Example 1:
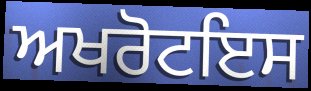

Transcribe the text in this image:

ਅਖਰੋਟਇਸ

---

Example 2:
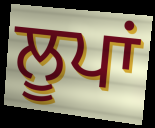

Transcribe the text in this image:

ਲੂਪਾਂ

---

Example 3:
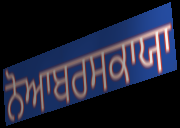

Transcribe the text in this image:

ਨੋਆਬਰਸਕਾਯਾ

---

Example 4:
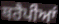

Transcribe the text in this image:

ਥਰੈਪੀਆਂ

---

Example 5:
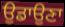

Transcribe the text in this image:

ਉਡਾਉਣਾ